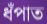
ধঁপাত